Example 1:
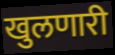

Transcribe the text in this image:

खुलणारी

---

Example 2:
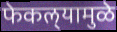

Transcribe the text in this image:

फेकल्यामुळे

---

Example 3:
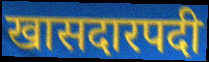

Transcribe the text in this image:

खासदारपदी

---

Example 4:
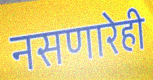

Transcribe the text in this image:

नसणारेही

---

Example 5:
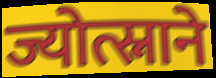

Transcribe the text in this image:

ज्योत्स्नाने